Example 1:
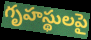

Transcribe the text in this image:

గృహస్థులపై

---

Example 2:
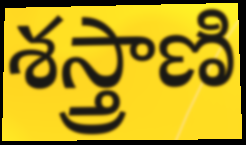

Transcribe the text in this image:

శస్త్రాణి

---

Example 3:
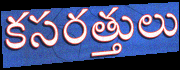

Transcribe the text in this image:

కసరత్తులు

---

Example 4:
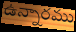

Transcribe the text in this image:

ఉన్నారము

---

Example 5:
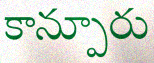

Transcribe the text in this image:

కాన్పూరు